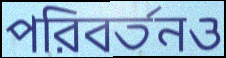
পরিবর্তনও